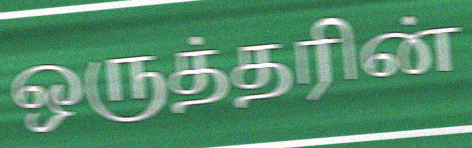
ஒருத்தரின்